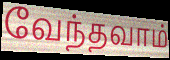
வேந்தவாம்